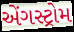
એંગસ્ટ્રોમ